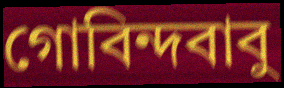
গোবিন্দবাবু